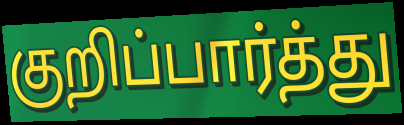
குறிப்பார்த்து